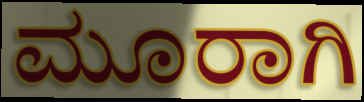
ಮೂರಾಗಿ